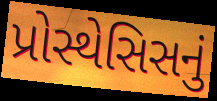
પ્રોસ્થેસિસનું